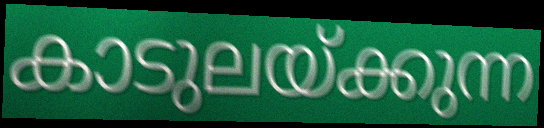
കാടുലയ്ക്കുന്ന